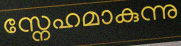
സ്നേഹമാകുന്നു